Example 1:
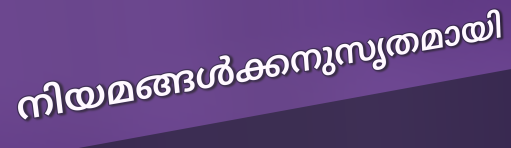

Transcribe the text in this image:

നിയമങ്ങൾക്കനുസൃതമായി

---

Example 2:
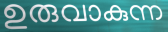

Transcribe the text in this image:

ഉരുവാകുന്ന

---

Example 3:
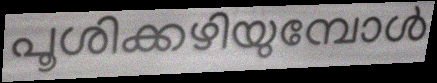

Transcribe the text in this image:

പൂശിക്കഴിയുമ്പോൾ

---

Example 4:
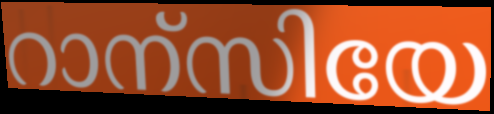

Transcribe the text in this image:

റാന്സിയേ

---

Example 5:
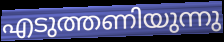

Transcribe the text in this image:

എടുത്തണിയുന്നു